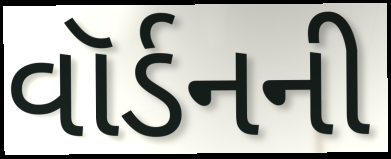
વૉર્ડનની